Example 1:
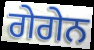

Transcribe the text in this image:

ਗੇਗੇਨ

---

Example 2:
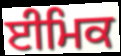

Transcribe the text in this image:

ਈਮਿਕ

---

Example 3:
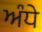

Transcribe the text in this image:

ਅੰਧੇ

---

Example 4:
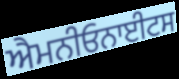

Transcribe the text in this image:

ਐਮਨੀਓਨਾਈਟਸ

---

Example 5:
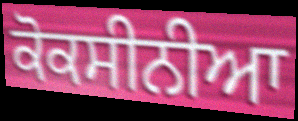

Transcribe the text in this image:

ਕੋਕਸੀਨੀਆ